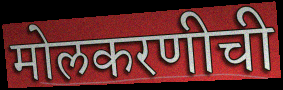
मोलकरणीची